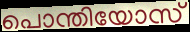
പൊന്തിയോസ്